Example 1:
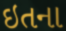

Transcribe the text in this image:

ઇતના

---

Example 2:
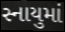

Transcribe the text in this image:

સ્નાયુમાં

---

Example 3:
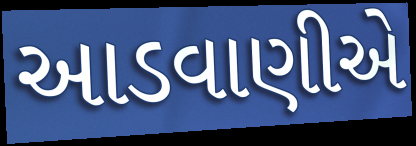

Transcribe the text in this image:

આડવાણીએ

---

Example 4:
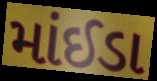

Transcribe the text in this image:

માંઈડા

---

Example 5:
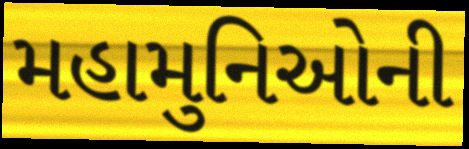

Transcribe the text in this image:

મહામુનિઓની